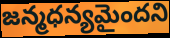
జన్మధన్యమైందని